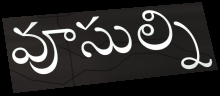
వూసుల్ని